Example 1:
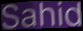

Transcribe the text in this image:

Sahid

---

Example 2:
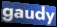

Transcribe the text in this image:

gaudy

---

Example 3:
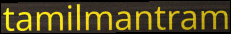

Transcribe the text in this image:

tamilmantram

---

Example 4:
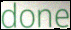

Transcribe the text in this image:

done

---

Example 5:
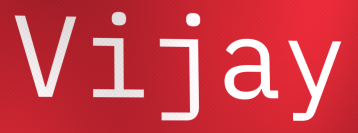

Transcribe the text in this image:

Vijay